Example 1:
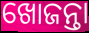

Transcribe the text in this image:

ଖୋଜନ୍ତା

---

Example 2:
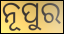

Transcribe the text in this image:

ନୂପୁର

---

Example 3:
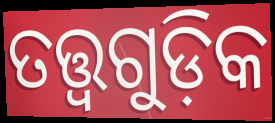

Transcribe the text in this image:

ତତ୍ତ୍ବଗୁଡ଼ିକ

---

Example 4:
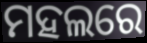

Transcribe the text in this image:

ମହଲରେ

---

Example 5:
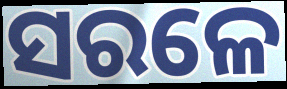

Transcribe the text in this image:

ସରଳେ